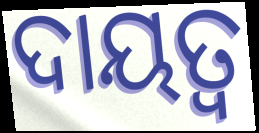
ଦାୟତ୍ବ